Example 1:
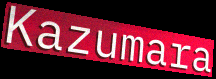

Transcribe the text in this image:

Kazumara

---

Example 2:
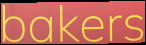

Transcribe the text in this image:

bakers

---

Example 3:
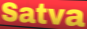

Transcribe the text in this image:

Satva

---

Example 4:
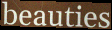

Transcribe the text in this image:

beauties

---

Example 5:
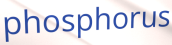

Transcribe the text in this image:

phosphorus